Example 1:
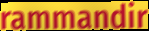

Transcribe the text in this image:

rammandir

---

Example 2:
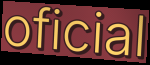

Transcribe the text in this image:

oficial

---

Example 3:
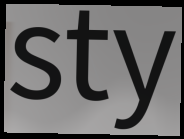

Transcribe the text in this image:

sty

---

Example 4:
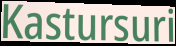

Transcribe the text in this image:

Kastursuri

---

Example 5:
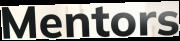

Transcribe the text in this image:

Mentors